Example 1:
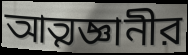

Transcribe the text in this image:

আত্মজ্ঞানীর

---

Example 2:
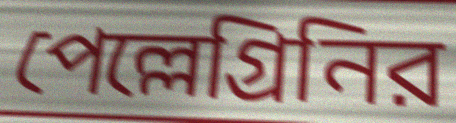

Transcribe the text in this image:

পেল্লেগ্রিনির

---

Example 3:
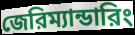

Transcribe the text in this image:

জেরিম্যান্ডারিং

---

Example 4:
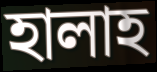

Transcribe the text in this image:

হালাহ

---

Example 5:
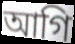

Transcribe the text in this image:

আগি